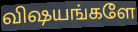
விஷயங்களே